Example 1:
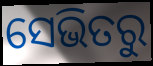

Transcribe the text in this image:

ସେଭିତରୁ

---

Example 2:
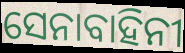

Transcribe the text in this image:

ସେନାବାହିନୀ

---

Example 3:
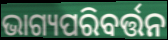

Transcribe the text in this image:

ଭାଗ୍ୟପରିବର୍ତ୍ତନ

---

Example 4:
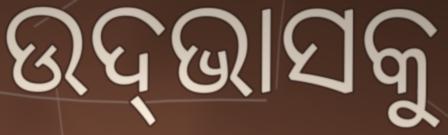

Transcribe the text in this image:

ଉଦ୍‌ଭାସକୁ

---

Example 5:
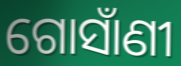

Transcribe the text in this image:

ଗୋସାଁଣୀ